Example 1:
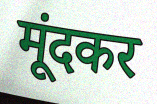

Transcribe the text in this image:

मूंदकर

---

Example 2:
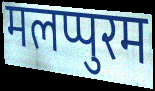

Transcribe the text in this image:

मलप्पुरम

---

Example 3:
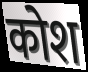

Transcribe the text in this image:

कोश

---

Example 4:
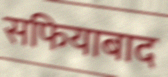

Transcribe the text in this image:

सफियाबाद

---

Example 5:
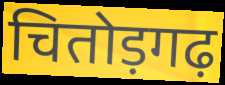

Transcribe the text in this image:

चितोड़गढ़